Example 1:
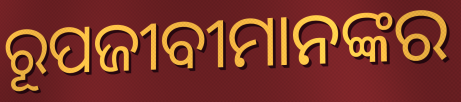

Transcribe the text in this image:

ରୂପଜୀବୀମାନଙ୍କର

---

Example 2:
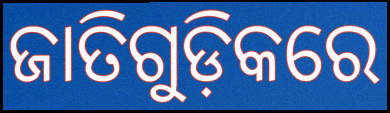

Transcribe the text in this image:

ଜାତିଗୁଡ଼ିକରେ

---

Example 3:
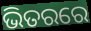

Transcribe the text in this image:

ଭିତରରେ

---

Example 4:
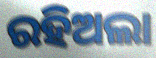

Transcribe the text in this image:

ରହିଅଲା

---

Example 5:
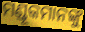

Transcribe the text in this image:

ମଣ୍ଡୂକମାନଙ୍କୁ